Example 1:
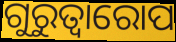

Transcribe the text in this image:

ଗୁରୁତ୍ବାରୋପ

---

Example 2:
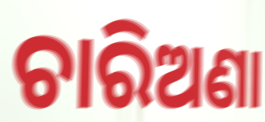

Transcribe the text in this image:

ଚାରିଅଣା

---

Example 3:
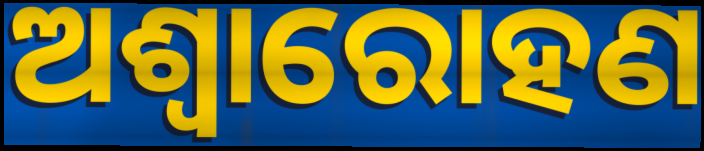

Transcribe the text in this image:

ଅଶ୍ୱାରୋହଣ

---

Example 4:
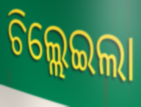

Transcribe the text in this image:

ଚିଲ୍ଲେଇଲା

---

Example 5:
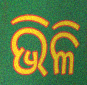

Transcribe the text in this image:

ଭିଳି